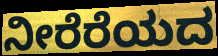
ನೀರೆರೆಯದ